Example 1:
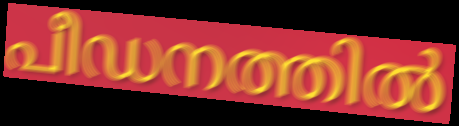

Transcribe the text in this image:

പീഡനത്തിൽ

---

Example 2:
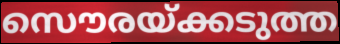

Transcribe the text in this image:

സൌരയ്ക്കടുത്ത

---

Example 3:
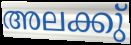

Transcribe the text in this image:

അലക്കു്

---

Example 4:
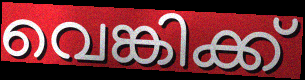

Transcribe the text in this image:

വെങ്കിക്ക്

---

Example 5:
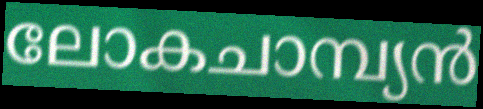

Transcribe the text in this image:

ലോകചാമ്പ്യൻ